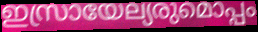
ഇസ്രായേല്യരുമൊപ്പം